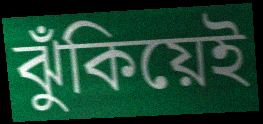
ঝুঁকিয়েই